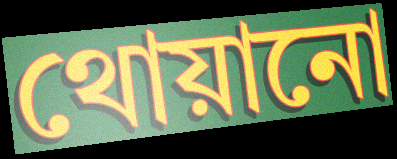
থোয়ানো